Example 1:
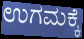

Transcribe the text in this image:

ಉಗಮಕ್ಕೆ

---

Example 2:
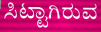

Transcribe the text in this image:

ಸಿಟ್ಟಾಗಿರುವ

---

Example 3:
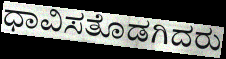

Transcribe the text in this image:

ಧಾವಿಸತೊಡಗಿದರು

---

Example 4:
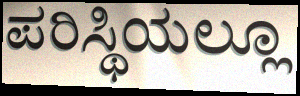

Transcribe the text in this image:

ಪರಿಸ್ಥಿಯಲ್ಲೂ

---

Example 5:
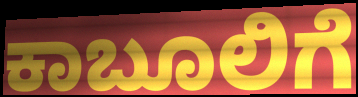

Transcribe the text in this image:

ಕಾಬೂಲಿಗೆ